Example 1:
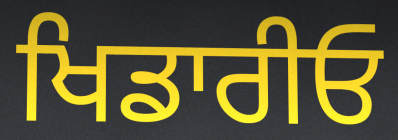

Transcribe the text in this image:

ਖਿਡਾਰੀਓ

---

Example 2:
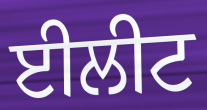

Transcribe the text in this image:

ਈਲੀਟ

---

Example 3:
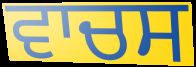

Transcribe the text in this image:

ਵਾਚਸ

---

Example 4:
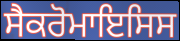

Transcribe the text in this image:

ਸੈਕਰੋਮਾਇਸਿਸ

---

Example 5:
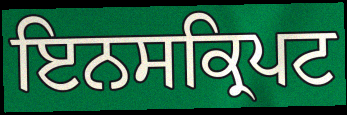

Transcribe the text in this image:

ਇਨਸਕ੍ਰਿਪਟ